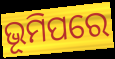
ଭୂମିପରେ